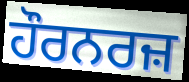
ਹੌਰਨਰਜ਼